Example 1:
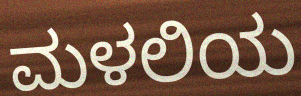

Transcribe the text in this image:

ಮಳಲಿಯ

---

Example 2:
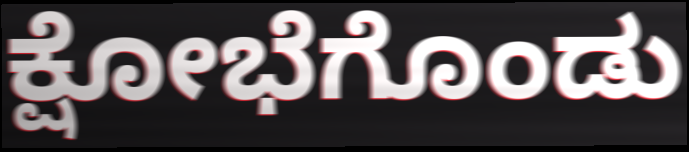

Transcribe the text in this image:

ಕ್ಷೋಭೆಗೊಂಡು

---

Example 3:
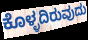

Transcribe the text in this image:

ಕೊಳ್ಳದಿರುವುದು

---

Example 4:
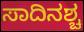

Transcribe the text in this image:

ಸಾದಿನಶ್ಚ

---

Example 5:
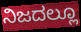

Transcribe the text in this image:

ನಿಜದಲ್ಲೂ